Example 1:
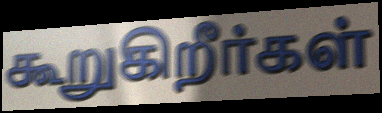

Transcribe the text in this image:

கூறுகிறீர்கள்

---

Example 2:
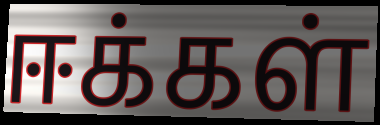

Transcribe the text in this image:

ஈக்கள்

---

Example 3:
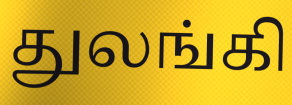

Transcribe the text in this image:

துலங்கி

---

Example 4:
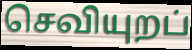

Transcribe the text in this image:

செவியுறப்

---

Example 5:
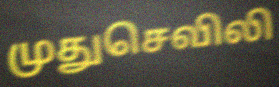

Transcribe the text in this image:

முதுசெவிலி